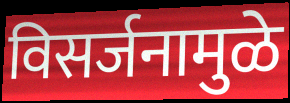
विसर्जनामुळे